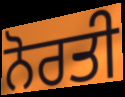
ਨੋਰਤੀ